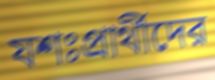
যশঃপ্রার্থীদের